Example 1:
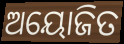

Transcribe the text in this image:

ଅୟୋଜିତ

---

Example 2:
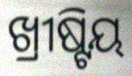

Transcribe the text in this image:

ଖ୍ରୀଷ୍ଟିୟ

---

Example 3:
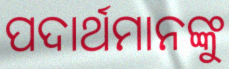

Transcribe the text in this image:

ପଦାର୍ଥମାନଙ୍କୁ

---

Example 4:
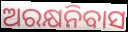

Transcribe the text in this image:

ଅରକ୍ଷନିବାସ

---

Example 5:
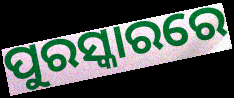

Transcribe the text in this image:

ପୁରସ୍କାରରେ